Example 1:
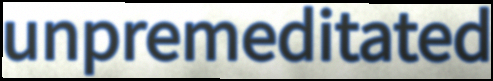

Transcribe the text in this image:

unpremeditated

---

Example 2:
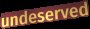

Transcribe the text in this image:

undeserved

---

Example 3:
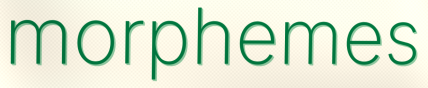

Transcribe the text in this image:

morphemes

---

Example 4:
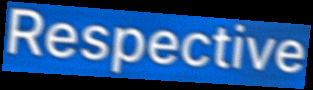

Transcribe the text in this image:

Respective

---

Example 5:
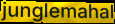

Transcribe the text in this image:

junglemahal